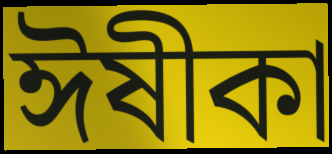
ঈষীকা